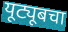
यूट्यूबचा